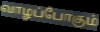
வாழப்போகும்